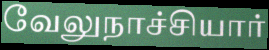
வேலுநாச்சியார்